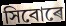
সিবোৰে